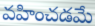
వహించడమే